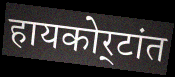
हायकोर्टांत